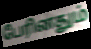
பேரினதும்